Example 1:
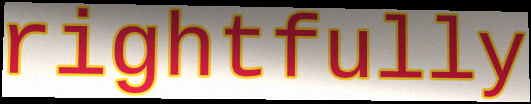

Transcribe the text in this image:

rightfully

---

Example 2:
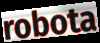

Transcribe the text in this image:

robota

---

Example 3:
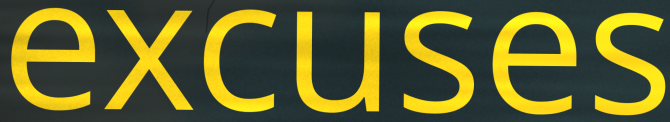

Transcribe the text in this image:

excuses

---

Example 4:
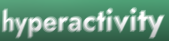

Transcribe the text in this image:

hyperactivity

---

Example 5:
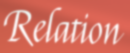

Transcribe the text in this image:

Relation